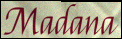
Madana